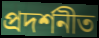
প্ৰদৰ্শনীত